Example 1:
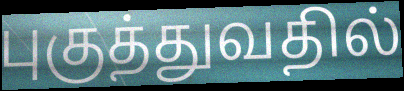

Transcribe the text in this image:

புகுத்துவதில்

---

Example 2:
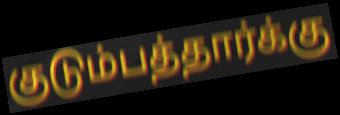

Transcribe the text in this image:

குடும்பத்தார்க்கு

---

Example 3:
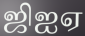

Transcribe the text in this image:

ஜிஐஏ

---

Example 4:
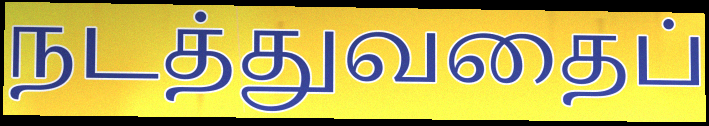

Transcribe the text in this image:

நடத்துவதைப்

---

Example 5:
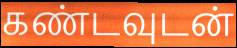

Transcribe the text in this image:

கண்டவுடன்